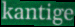
kantige